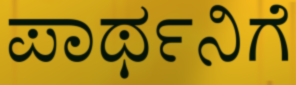
ಪಾರ್ಥನಿಗೆ